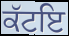
ਕੱਟਇ